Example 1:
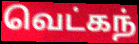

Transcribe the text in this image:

வெட்கந்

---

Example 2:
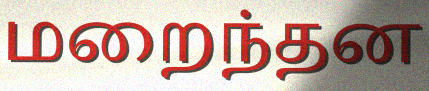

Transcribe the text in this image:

மறைந்தன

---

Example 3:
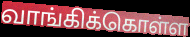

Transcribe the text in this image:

வாங்கிக்கொள்ள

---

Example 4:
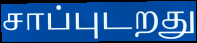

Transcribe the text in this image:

சாப்புடறது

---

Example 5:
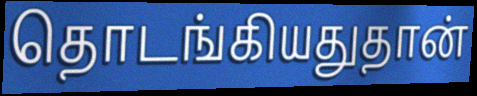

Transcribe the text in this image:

தொடங்கியதுதான்